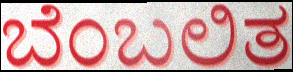
ಬೆಂಬಲಿತ